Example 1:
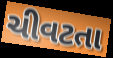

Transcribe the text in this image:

ચીવટતા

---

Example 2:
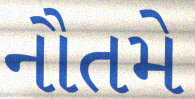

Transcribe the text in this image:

નૌતમે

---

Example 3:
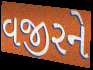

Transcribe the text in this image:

વજીરને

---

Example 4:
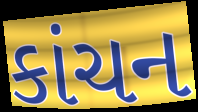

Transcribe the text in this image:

કાંચન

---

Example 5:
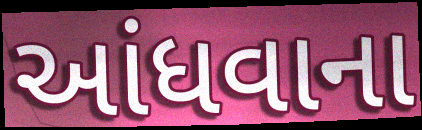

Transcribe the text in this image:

આંધવાના